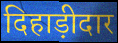
दिहाड़ीदार